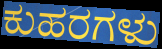
ಕುಹರಗಳು